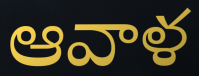
ఆవాళ